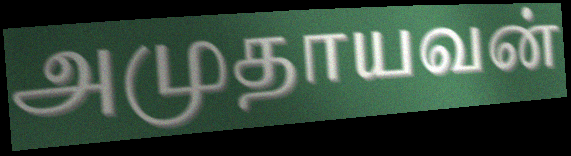
அமுதாயவன்